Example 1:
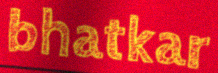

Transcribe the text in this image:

bhatkar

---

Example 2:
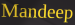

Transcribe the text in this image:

Mandeep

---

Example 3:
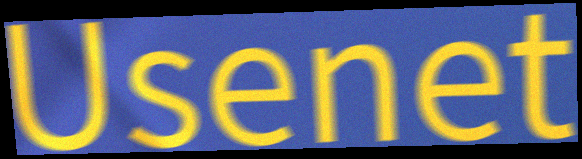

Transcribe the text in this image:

Usenet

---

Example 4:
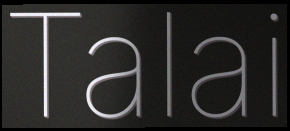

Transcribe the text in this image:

Talai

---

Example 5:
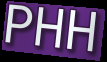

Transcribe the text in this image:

PHH